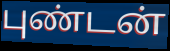
புண்டன்